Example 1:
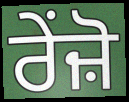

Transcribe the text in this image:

ਰੇਂਜ਼ੋ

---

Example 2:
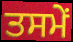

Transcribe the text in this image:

ਤਸਮੇਂ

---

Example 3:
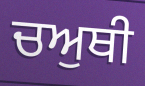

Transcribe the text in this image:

ਚਅੁਥੀ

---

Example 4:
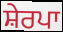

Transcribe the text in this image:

ਸ਼ੇਰਪਾ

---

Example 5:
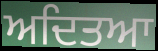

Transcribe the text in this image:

ਅਦਿਤਆ